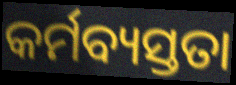
କର୍ମବ୍ୟସ୍ତତା